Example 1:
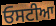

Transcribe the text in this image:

ਓਸਟੀਆ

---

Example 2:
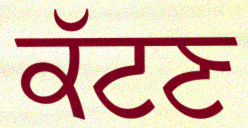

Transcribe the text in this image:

ਕੱਟਣ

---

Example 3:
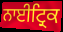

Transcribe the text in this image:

ਨਾਈਟ੍ਰਿਕ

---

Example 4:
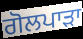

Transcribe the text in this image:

ਗੋਲਪਾੜਾ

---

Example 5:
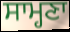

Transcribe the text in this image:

ਸਾਮ੍ਹਣਾ